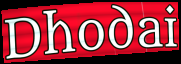
Dhodai